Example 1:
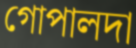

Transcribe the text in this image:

গোপালদা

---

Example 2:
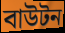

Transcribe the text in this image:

বাউটন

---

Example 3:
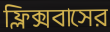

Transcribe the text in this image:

ফ্লিক্সবাসের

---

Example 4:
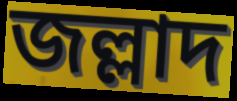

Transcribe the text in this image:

জল্লাদ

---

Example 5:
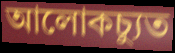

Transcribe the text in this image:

আলোকচ্যুত